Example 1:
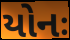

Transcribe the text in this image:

યોનઃ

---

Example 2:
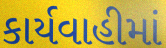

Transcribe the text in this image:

કાર્યવાહીમાં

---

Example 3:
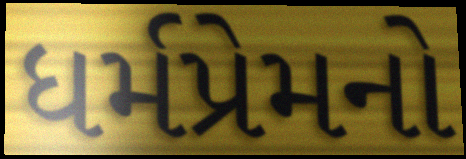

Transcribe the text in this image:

ધર્મપ્રેમનો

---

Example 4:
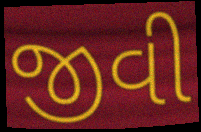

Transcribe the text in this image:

જીવી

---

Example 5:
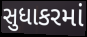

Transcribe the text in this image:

સુધાકરમાં